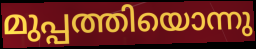
മുപ്പത്തിയൊന്നു